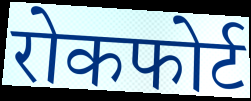
रोकफोर्ट